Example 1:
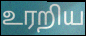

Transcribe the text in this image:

உரறிய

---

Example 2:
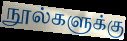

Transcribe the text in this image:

நூல்களுக்கு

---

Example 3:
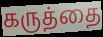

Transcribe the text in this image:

கருத்தை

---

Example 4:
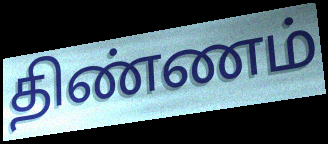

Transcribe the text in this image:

திண்ணம்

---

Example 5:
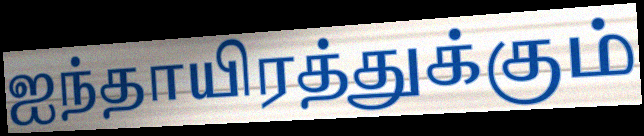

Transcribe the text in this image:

ஐந்தாயிரத்துக்கும்